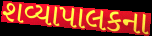
શવ્યાપાલકના